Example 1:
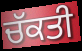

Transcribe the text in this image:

ਚੱਕਤੀ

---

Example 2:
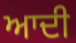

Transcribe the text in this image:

ਆਦੀ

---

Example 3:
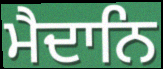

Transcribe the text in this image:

ਮੈਦਾਨਿ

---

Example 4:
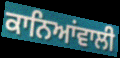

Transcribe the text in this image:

ਕਾਨਿਆਂਵਾਲੀ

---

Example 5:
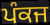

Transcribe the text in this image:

ਪੰਕਜ